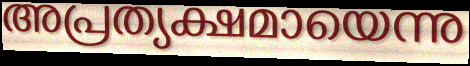
അപ്രത്യക്ഷമായെന്നു